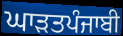
ਘਾੜਤਪੰਜਾਬੀ